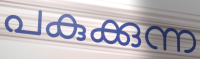
പകുക്കുന്ന